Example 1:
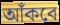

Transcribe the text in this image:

আঁকবে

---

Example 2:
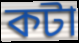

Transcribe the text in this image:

কটা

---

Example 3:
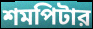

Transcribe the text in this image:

শমপিটার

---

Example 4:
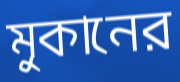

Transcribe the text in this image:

মুকানের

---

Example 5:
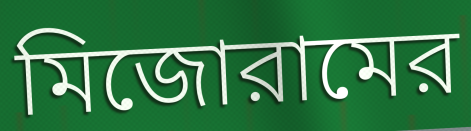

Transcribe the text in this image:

মিজোরামের